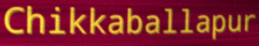
Chikkaballapur